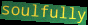
soulfully